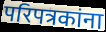
परिपत्रकांना